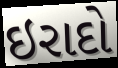
ઇરાદો